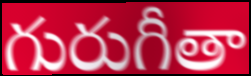
గురుగీతా